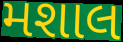
મશાલ